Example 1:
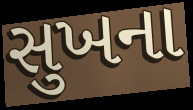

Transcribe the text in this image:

સુખના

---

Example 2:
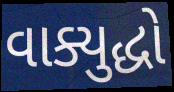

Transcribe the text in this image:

વાક્યુદ્ધો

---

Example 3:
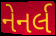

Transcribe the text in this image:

નેનર્લ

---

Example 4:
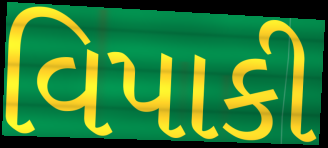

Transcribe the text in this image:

વિપાકી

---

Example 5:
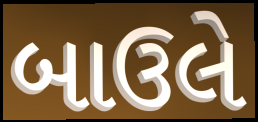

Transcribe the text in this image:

બાઉલે